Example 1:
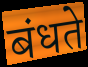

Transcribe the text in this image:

बंधते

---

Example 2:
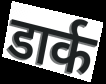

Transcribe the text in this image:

डार्क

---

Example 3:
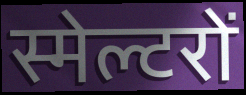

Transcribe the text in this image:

स्मेल्टरों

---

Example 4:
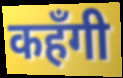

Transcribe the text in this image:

कहँगी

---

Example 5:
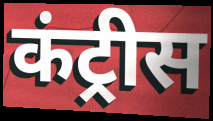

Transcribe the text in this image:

कंट्रीस